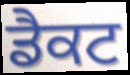
ਡੈਕਟ